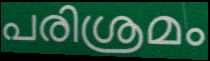
പരിശ്രമം